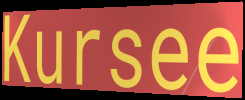
Kursee